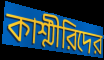
কাশ্মীরিদের